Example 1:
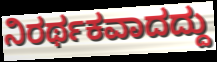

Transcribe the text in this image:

ನಿರರ್ಥಕವಾದದ್ದು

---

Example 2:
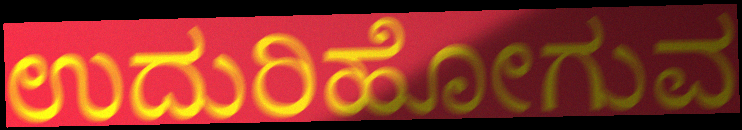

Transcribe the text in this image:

ಉದುರಿಹೋಗುವ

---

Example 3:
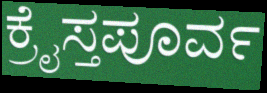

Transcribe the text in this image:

ಕ್ರೈಸ್ತಪೂರ್ವ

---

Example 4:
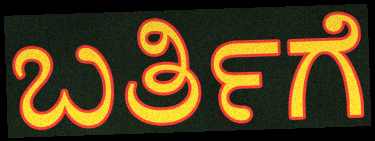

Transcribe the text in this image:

ಬರ್ತಿಗೆ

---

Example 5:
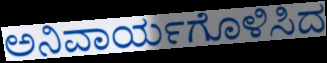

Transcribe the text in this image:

ಅನಿವಾರ್ಯಗೊಳಿಸಿದ